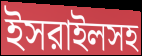
ইসরাইলসহ